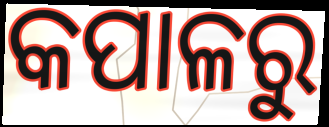
କପାଳରୁ